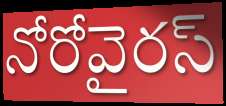
నోరోవైరస్